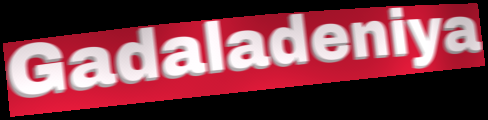
Gadaladeniya